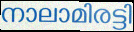
നാലാമിരട്ടി